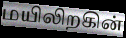
மயிலிறகின்